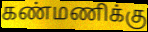
கண்மணிக்கு